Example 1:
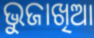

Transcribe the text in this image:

ଭୁଜାଖିଆ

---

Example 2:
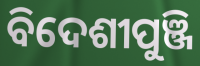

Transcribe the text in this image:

ବିଦେଶୀପୁଞ୍ଜି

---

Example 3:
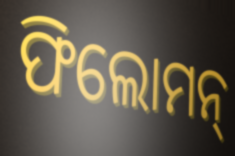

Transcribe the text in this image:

ଫିଲୋମନ୍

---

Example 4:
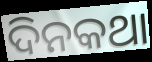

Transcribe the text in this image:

ଦିନକଥା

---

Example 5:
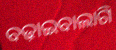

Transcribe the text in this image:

ବଢ଼ାଇବାଲାଗି